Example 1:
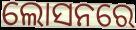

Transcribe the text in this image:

ଲୋସନରେ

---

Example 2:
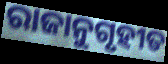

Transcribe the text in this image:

ରାଜାନୁଗୃହୀତ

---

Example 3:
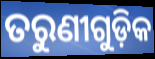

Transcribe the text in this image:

ତରୁଣୀଗୁଡ଼ିକ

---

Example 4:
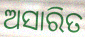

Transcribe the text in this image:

ଅସାରିତ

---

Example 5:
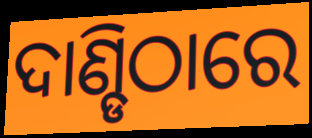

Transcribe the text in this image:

ଦାଣ୍ଡିଠାରେ